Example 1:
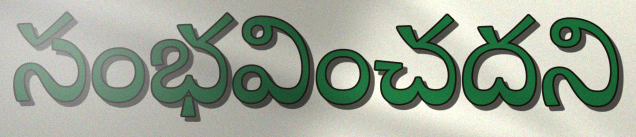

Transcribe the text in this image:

సంభవించదని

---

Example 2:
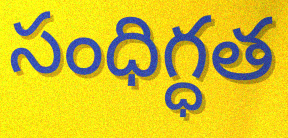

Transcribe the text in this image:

సంధిగ్ధత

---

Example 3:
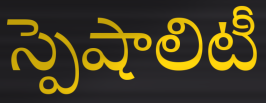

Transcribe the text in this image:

స్పెషాలిటీ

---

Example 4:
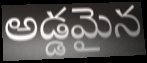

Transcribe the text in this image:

అడ్డమైన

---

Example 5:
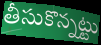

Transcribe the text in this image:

తీసుకొన్నట్టు